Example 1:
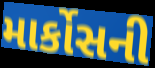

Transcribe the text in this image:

માર્કોસની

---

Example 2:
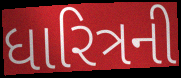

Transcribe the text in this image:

ધારિત્રની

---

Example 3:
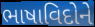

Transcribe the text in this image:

ભાષાવિદોને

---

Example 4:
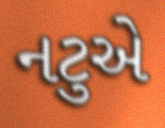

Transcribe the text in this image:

નટુએ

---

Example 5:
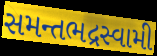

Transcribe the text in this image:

સમન્તભદ્રસ્વામી